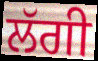
ਲੱਗੀ